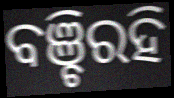
ବଞ୍ଚିରହି